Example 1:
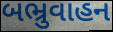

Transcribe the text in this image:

બભ્રુવાહન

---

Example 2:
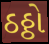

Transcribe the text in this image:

ઠઠ્ઠો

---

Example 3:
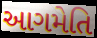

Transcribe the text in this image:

આગમેતિ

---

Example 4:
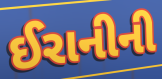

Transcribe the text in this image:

ઈરાનીની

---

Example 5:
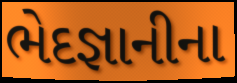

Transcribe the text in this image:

ભેદજ્ઞાનીના